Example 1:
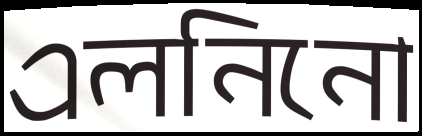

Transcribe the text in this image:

এলনিনো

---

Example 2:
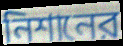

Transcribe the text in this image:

নিশানের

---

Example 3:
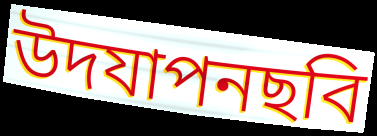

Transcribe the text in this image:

উদযাপনছবি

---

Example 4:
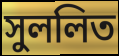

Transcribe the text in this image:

সুললিত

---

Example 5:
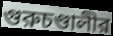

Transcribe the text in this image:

গুরুচণ্ডালীর